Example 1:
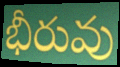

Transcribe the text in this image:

భీరువు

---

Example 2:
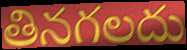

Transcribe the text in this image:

తినగలదు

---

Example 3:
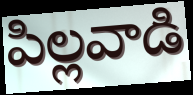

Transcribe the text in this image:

పిల్లవాడి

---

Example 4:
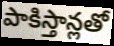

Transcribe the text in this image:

పాకిస్తాన్లతో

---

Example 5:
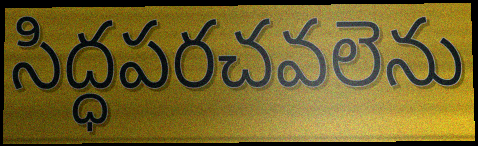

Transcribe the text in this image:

సిద్ధపరచవలెను